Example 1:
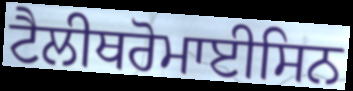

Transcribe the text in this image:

ਟੈਲੀਥਰੋਮਾਈਸਿਨ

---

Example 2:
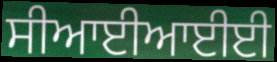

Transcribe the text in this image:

ਸੀਆਈਆਈਈ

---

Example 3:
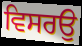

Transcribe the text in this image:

ਵਿਸਰਉ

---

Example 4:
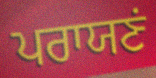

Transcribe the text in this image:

ਪਰਾਯਣਂ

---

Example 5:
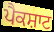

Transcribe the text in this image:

ਪੈਕਸ਼ਾਟ